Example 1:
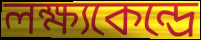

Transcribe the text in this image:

লক্ষ্যকেন্দ্রে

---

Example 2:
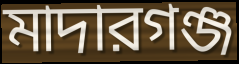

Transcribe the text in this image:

মাদারগঞ্জ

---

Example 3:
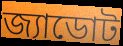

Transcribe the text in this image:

জ্যাডোট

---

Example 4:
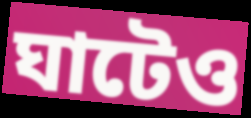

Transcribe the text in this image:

ঘাটেও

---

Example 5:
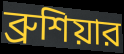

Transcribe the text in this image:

ব্রুশিয়ার